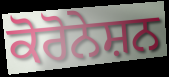
ਕੋਰੋਨੇਸ਼ਨ